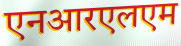
एनआरएलएम